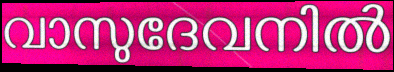
വാസുദേവനിൽ